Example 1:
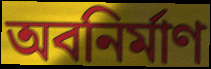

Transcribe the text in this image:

অবনির্মাণ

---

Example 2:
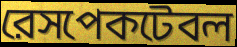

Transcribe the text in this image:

রেসপেকটেবল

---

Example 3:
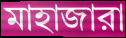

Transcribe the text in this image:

মাহাজারা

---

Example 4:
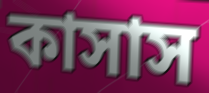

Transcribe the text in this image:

কাসাস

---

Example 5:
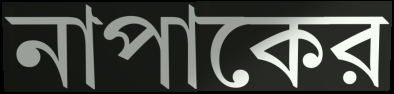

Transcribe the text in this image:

নাপাকের